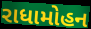
રાધામોહન